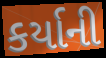
કર્યાની